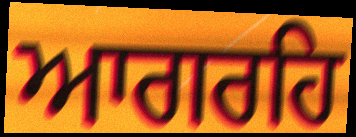
ਆਗਰਹਿ